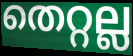
തെറ്റല്ല